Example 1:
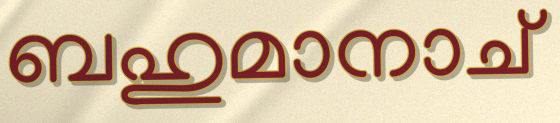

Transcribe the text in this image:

ബഹുമാനാച്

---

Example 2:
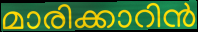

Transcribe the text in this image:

മാരിക്കാറിൻ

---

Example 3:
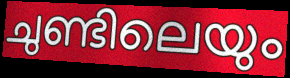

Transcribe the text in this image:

ചുണ്ടിലെയും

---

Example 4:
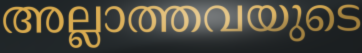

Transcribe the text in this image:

അല്ലാത്തവയുടെ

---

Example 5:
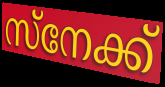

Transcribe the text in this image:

സ്നേക്ക്